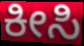
ಕೀಸಿ